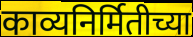
काव्यनिर्मितीच्या